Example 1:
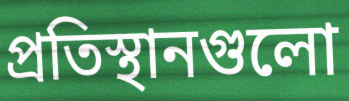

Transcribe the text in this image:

প্রতিস্থানগুলো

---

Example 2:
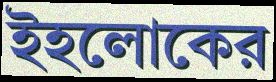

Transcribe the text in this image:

ইহলোকের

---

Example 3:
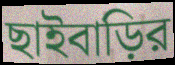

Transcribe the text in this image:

ছাইবাড়ির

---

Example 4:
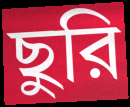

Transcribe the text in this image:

ছুরি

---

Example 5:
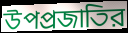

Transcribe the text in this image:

উপপ্রজাতির